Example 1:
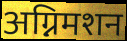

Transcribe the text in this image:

अग्निमशन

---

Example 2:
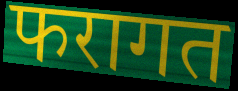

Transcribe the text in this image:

फरागत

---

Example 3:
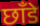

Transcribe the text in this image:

छाँडे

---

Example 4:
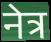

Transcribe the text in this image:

नेत्र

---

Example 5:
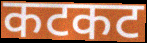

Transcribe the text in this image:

कटकट